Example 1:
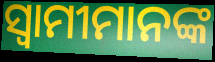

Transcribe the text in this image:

ସ୍ବାମୀମାନଙ୍କ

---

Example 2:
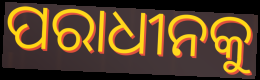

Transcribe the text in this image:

ପରାଧୀନକୁ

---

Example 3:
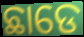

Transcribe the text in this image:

ଛାଡେ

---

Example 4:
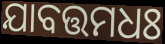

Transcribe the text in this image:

ଯାବତ୍ତମଧଃ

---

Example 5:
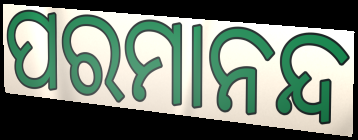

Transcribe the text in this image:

ପରମାନନ୍ଦ